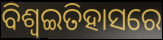
ବିଶ୍ଵଇତିହାସରେ